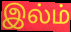
இல்ம்